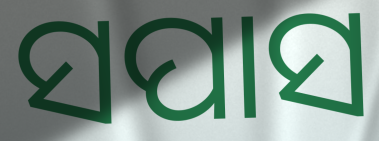
ସପାସ